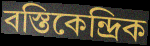
বস্তিকেন্দ্রিক